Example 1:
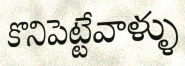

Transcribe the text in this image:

కొనిపెట్టేవాళ్ళు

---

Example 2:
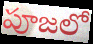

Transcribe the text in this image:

పూజలో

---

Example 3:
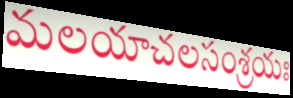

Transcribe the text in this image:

మలయాచలసంశ్రయః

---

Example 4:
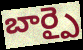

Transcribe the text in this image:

బార్పై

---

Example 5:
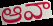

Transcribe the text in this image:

ఆవా